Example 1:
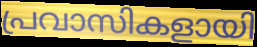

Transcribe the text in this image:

പ്രവാസികളായി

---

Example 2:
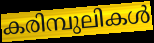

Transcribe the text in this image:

കരിമ്പുലികൾ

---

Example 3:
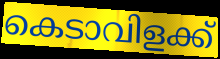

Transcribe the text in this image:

കെടാവിളക്ക്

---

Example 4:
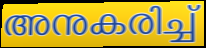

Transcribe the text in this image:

അനുകരിച്ച്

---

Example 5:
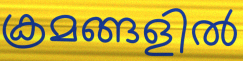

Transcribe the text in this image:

ക്രമങ്ങളിൽ